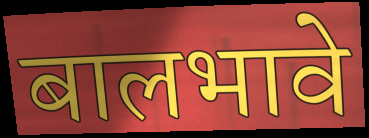
बालभावे